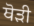
ਥੋੜੀ